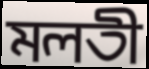
মলতী